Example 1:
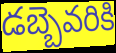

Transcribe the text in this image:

డబ్బెవరికి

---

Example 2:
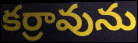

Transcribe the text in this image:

కర్రావును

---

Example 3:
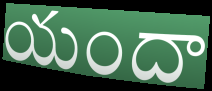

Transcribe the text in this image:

యందా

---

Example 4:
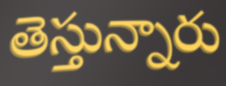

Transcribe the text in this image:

తెస్తున్నారు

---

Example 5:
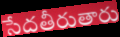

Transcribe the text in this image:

సేదతీరుతారు